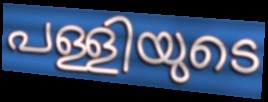
പള്ളിയുടെ